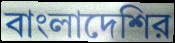
বাংলাদেশির